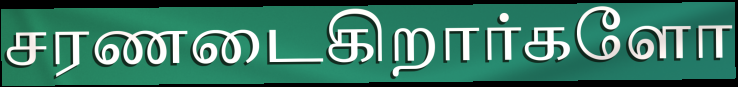
சரணடைகிறார்களோ